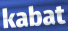
kabat